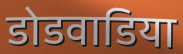
डोडवाडिया